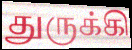
துருக்கி